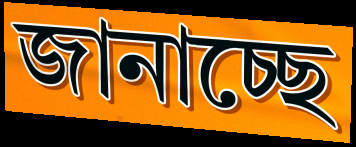
জানাচ্ছে